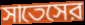
সাতেসের